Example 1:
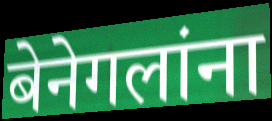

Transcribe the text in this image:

बेनेगलांना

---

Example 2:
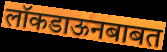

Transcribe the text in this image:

लॉकडाऊनबाबत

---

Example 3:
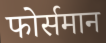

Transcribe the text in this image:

फोर्समान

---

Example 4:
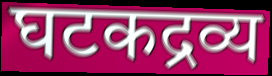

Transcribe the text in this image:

घटकद्रव्य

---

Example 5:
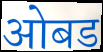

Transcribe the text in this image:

ओबड